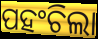
ପହଂଚିଲା